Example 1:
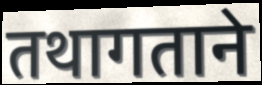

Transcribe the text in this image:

तथागताने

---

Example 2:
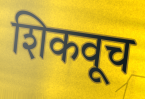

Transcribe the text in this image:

शिकवूच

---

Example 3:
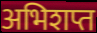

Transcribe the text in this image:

अभिशप्त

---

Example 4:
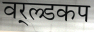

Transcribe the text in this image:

वर्ल्डकप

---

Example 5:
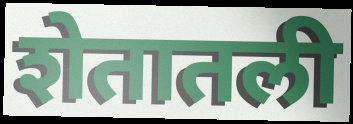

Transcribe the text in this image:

शेतातली